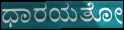
ಧಾರಯತೋ